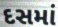
દસમાં